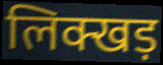
लिक्खड़